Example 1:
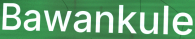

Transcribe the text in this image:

Bawankule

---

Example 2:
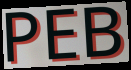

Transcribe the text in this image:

PEB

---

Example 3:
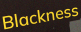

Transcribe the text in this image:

Blackness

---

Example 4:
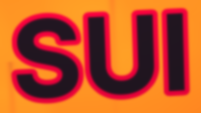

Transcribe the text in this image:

SUI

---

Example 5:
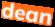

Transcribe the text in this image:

dean